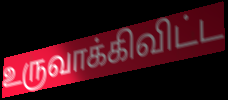
உருவாக்கிவிட்ட